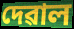
দেৱাল